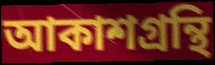
আকাশগ্রন্থি